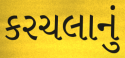
કરચલાનું